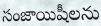
సంజాయిషీలను